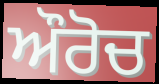
ਔਰੋਚ